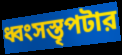
ধ্বংসস্তৃপটার